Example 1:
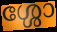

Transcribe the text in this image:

ശ്ശോ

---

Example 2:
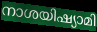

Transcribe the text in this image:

നാശയിഷ്യാമി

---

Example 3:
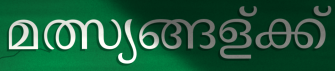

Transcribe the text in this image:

മത്സ്യങ്ങള്ക്ക്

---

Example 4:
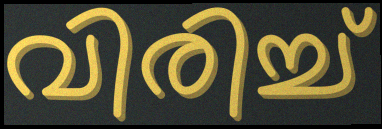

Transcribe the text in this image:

വിരിച്ച്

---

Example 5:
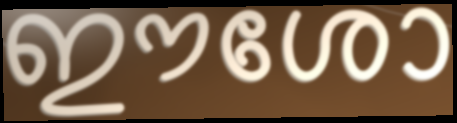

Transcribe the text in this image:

ഈശോ